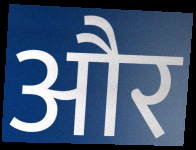
और